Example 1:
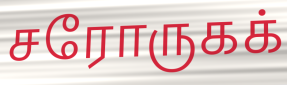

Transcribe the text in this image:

சரோருகக்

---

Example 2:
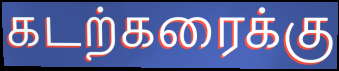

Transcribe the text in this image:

கடற்கரைக்கு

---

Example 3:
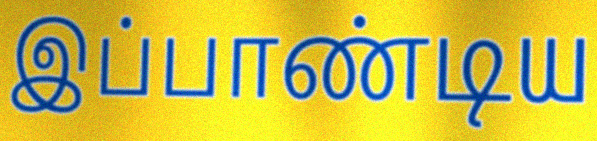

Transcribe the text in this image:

இப்பாண்டிய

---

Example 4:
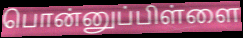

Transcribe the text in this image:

பொன்னுப்பிள்ளை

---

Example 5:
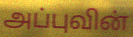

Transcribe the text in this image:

அப்புவின்